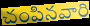
చంపినవారి